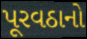
પૂરવઠાનો